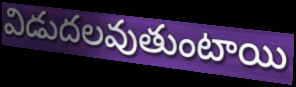
విడుదలవుతుంటాయి